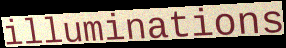
illuminations